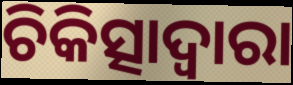
ଚିକିତ୍ସାଦ୍ଵାରା